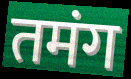
तमंग